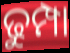
ଢୁମ୍ପା